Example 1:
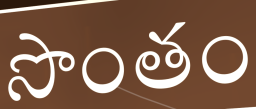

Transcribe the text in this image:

సొంతం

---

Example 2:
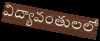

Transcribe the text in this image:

విద్యావంతులలో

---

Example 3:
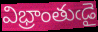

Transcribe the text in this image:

విభ్రాంతుఁడై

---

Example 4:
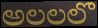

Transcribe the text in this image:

అలలలొ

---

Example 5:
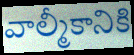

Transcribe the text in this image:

వాల్మీకానికి